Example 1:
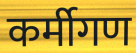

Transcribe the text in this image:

कर्मीगण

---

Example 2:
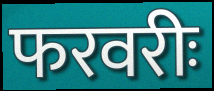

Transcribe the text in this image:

फरवरीः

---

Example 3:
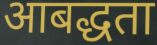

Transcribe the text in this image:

आबद्धता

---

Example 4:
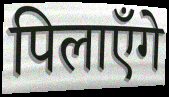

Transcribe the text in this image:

पिलाएँगे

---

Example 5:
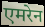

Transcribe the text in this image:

एमरेन